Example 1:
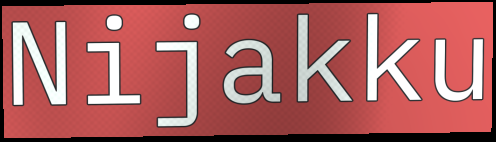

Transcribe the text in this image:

Nijakku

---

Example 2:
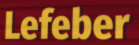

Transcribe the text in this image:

Lefeber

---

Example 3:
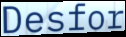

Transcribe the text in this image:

Desfor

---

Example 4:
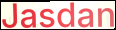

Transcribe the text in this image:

Jasdan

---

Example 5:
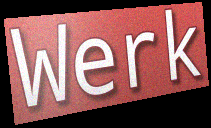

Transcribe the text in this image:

Werk